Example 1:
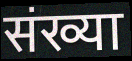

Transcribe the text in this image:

संख्या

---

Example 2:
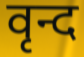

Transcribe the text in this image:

वृन्द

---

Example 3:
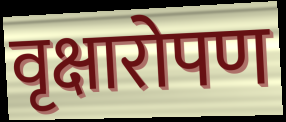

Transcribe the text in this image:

वृक्षारोपण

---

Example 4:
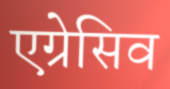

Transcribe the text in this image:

एग्रेसिव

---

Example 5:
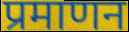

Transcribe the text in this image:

प्रमाणन